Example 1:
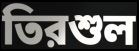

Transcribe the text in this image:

তিরশুল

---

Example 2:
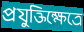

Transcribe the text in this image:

প্রযুক্তিক্ষেত্রে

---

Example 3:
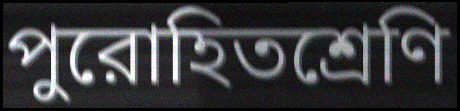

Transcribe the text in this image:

পুরোহিতশ্রেণি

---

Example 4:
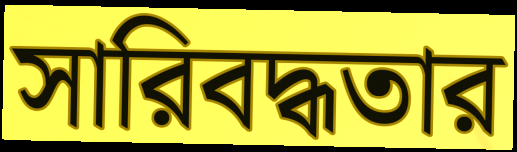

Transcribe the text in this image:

সারিবদ্ধতার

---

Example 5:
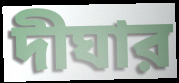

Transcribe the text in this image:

দীঘার